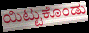
ಯಿಟ್ಟುಕೊಂಡು